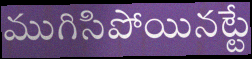
ముగిసిపోయినట్టే